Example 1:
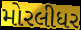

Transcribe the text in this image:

મોરલીધર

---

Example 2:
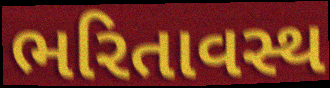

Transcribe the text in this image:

ભરિતાવસ્થ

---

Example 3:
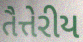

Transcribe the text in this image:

તૈત્તેરીય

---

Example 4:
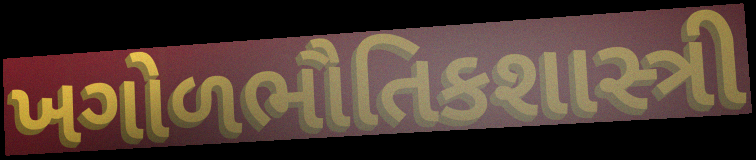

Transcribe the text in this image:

ખગોળભૌતિકશાસ્ત્રી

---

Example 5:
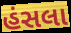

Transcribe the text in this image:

હંસલા